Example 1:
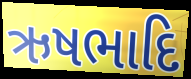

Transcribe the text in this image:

ઋષભાદિ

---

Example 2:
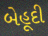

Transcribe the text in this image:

બેહૂદી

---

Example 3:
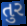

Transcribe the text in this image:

તુર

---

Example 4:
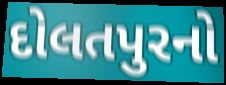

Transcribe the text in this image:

દોલતપુરનો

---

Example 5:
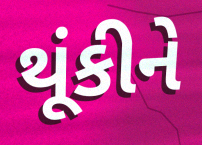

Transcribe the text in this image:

થૂંકીને